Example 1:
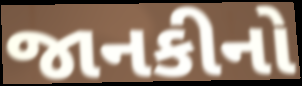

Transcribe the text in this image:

જાનકીનો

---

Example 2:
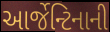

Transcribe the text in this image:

આર્જેન્ટિનાની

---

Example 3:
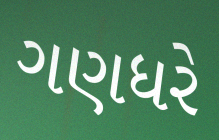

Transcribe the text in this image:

ગણધરે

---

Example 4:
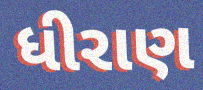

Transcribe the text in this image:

ધીરાણ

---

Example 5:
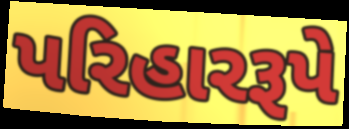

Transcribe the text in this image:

પરિહારરૂપે